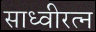
साध्वीरत्न